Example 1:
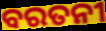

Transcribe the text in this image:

ବରତନୀ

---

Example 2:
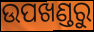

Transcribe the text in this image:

ଉପଖଣ୍ଡରୁ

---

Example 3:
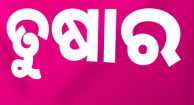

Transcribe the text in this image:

ତୁଷାର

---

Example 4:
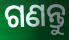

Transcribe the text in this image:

ଗଣନ୍ତୁ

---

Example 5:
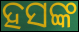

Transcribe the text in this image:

ହସଙ୍କ